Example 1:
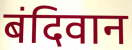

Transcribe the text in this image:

बंदिवान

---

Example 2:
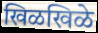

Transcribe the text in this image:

खिळखिळे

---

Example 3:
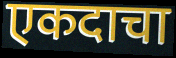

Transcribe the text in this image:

एकदाचा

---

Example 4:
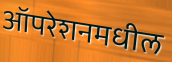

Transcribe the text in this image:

ऑपरेशनमधील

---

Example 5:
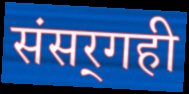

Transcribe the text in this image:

संसर्गही